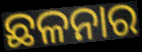
ଛଳନାର